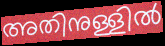
അതിനുള്ളിൽ